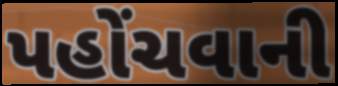
પહોંચવાની